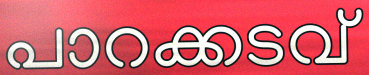
പാറക്കടവ്